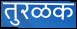
तुरळक